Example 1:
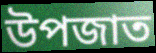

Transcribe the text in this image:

উপজাত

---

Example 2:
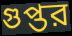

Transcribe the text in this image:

গুপ্তর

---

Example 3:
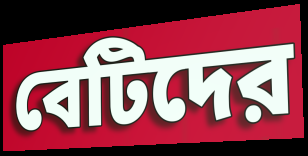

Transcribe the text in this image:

বেটিদের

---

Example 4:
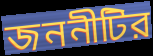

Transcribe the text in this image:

জননীটির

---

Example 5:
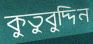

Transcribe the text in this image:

কুতুবুদ্দিন